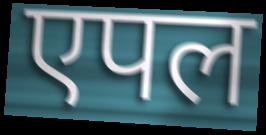
एपल